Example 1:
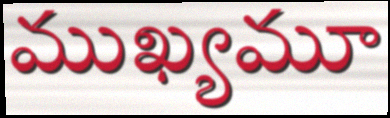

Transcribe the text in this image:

ముఖ్యమూ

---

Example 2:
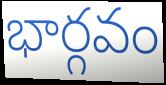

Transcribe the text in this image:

భార్గవం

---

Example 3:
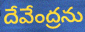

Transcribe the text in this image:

దేవేంద్రను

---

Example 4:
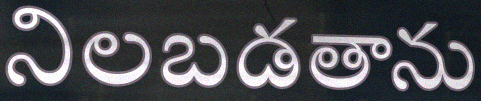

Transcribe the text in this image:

నిలబడతాను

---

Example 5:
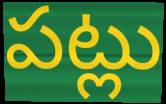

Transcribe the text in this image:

పట్లు